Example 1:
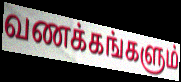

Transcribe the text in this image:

வணக்கங்களும்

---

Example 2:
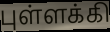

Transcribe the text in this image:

புள்ளக்கி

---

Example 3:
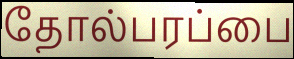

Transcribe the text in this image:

தோல்பரப்பை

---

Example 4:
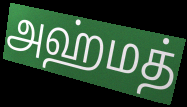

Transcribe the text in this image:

அஹ்மத்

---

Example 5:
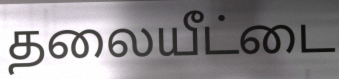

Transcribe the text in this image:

தலையீட்டை